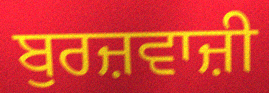
ਬੁਰਜ਼ਵਾਜ਼ੀ